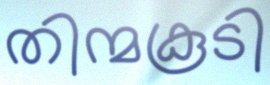
തിന്മകൂടി